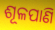
ଶୂଳପାଣି